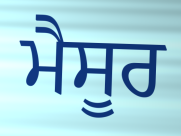
ਮੈਸੂਰ